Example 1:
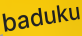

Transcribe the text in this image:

baduku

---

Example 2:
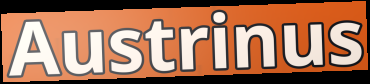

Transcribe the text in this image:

Austrinus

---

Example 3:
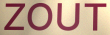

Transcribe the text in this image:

ZOUT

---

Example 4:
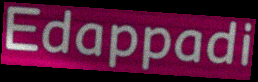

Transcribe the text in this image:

Edappadi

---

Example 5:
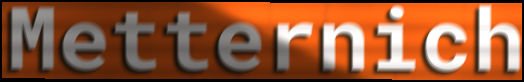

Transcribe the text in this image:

Metternich